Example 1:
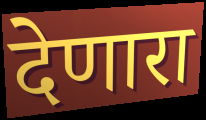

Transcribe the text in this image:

देणारा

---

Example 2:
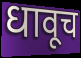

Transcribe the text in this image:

धावूच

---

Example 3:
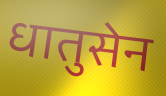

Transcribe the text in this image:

धातुसेन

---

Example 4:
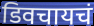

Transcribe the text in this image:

डिवचायचं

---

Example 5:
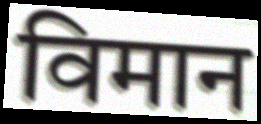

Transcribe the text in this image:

विमान